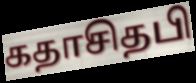
கதாசிதபி